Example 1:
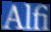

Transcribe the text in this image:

Alfi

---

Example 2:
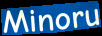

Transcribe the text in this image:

Minoru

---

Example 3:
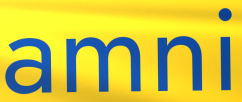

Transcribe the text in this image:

amni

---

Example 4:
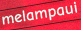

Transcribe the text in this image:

melampaui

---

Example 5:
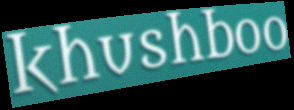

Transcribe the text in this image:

khushboo